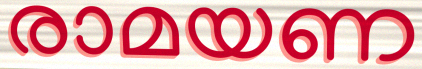
രാമയണ